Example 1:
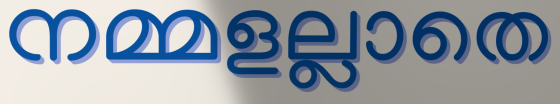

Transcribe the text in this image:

നമ്മളല്ലാതെ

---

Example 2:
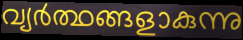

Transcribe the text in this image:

വ്യർത്ഥങ്ങളാകുന്നു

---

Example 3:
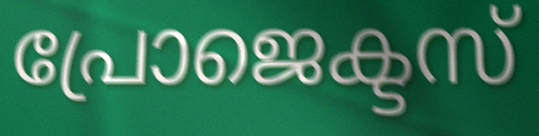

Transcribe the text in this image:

പ്രോജെക്ടസ്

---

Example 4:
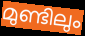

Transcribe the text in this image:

മുണ്ടിലും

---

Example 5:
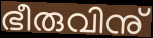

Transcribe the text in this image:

ഭീരുവിനു്